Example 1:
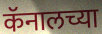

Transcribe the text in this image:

कॅनालच्या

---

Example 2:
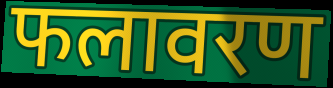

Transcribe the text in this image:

फलावरण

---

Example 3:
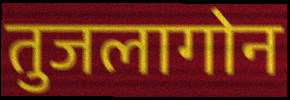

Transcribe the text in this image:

तुजलागोन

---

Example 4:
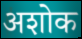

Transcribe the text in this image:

अशोक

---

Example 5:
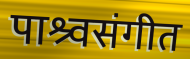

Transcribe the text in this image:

पाश्र्वसंगीत